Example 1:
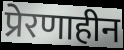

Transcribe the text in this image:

प्रेरणाहीन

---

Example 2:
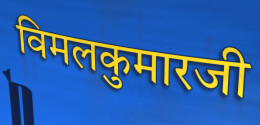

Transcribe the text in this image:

विमलकुमारजी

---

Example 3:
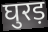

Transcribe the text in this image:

घुरड़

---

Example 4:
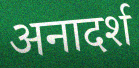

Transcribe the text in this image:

अनादर्श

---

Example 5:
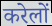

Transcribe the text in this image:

करेलों